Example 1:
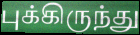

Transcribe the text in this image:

புக்கிருந்து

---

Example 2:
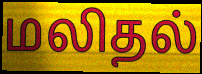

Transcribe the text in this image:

மலிதல்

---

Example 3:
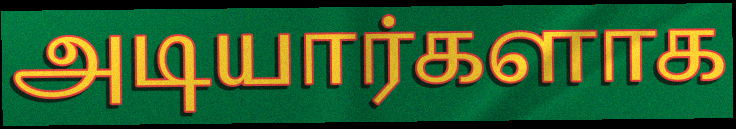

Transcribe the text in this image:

அடியார்களாக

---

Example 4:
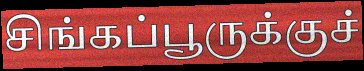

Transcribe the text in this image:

சிங்கப்பூருக்குச்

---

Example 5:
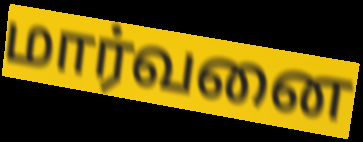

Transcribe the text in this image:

மார்வனை